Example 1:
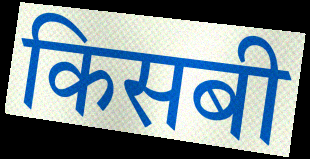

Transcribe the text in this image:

किसबी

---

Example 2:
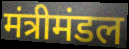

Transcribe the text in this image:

मंत्रीमंडल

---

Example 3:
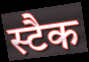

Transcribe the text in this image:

स्‍टैक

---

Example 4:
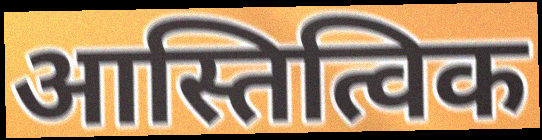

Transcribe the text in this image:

आस्तित्विक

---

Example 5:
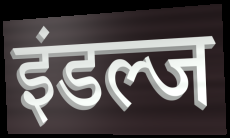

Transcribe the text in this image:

इंडल्ज